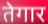
तेगार